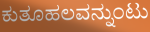
ಕುತೂಹಲವನ್ನುಂಟು